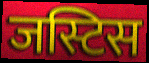
जस्टिस